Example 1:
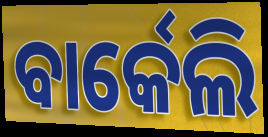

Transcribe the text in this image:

ବାର୍କେଲି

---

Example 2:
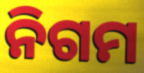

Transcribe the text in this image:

ନିଗମ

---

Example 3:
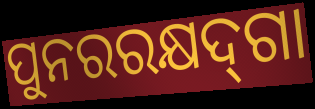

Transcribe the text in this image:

ପୁନରରକ୍ଷଦ୍‌ଗା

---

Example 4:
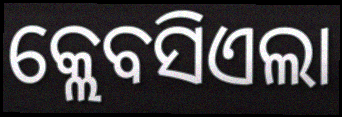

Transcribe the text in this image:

କ୍ଲେବସିଏଲା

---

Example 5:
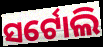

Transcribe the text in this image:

ସର୍ଟୋଲି